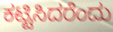
ಕಟ್ಟಿಸಿದರೆಂದು